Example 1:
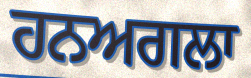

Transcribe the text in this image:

ਹਨਅਗਲਾ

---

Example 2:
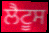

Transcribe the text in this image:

ਲੈਟੂਸ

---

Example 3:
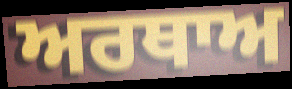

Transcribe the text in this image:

ਅਰਥਾਅ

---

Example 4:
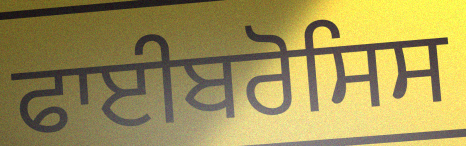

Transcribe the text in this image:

ਫਾਈਬਰੋਸਿਸ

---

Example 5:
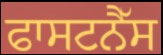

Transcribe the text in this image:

ਫਾਸਟਨੈੱਸ